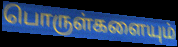
பொருள்களையும்